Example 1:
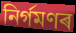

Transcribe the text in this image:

নিৰ্গমণৰ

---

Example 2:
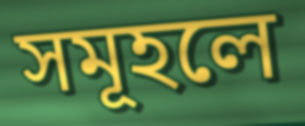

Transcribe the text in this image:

সমূহলে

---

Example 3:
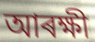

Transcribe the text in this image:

আৰক্ষী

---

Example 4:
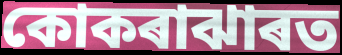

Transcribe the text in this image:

কোকৰাঝাৰত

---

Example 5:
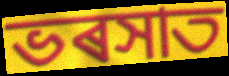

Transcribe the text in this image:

ভৰসাত